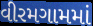
વીરમગામમાં